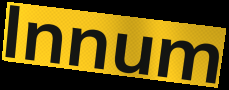
Innum